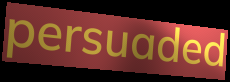
persuaded